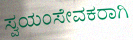
ಸ್ವಯಂಸೇವಕರಾಗಿ